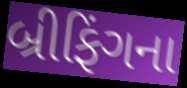
બ્રીફિંગના